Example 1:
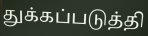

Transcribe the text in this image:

துக்கப்படுத்தி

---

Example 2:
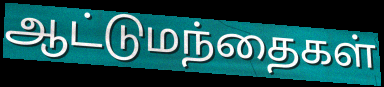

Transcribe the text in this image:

ஆட்டுமந்தைகள்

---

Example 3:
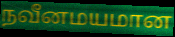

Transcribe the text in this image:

நவீனமயமான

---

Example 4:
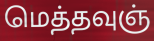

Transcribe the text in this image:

மெத்தவுஞ்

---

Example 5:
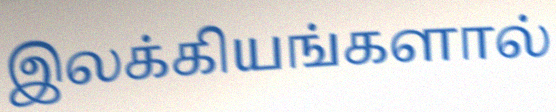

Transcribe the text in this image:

இலக்கியங்களால்